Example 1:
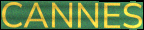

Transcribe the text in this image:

CANNES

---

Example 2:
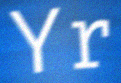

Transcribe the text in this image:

Yr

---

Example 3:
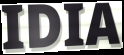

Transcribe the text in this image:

IDIA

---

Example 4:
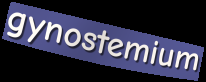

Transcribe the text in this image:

gynostemium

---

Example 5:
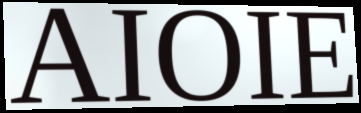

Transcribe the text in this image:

AIOIE